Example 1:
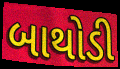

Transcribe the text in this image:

બાથોડી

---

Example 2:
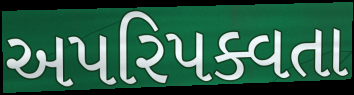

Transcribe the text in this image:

અપરિપક્વતા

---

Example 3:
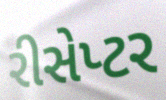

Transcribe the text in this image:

રીસેપ્ટર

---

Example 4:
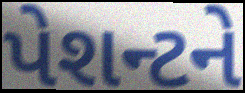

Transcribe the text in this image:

પેશન્ટને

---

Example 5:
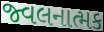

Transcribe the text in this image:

જ્વલનાત્મક